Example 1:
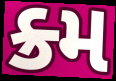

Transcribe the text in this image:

ક્ર્મ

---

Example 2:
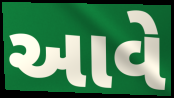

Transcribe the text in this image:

આવે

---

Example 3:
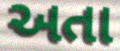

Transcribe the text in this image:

અતા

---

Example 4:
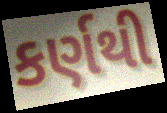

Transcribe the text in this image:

કર્ણથી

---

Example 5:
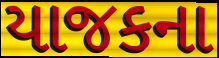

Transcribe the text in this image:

યાજકના